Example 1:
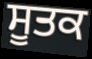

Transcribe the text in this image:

ਸੂਤਕ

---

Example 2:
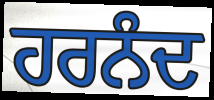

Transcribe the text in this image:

ਹਰਨੰਦ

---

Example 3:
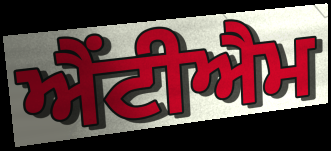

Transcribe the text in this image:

ਐਂਟੀਐਮ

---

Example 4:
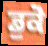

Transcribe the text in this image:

ਡੁਕੋ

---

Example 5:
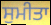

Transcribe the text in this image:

ਸੁਮੀਤਾ